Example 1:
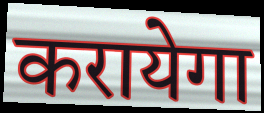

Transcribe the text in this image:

करायेगा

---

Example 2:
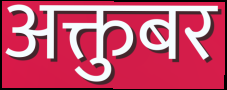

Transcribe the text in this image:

अक्तुबर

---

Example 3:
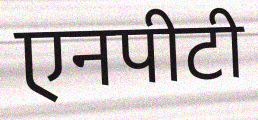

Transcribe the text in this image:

एनपीटी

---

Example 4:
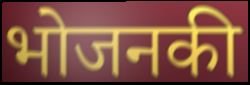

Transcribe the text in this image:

भोजनकी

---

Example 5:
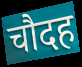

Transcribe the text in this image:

चौदह